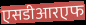
एसडीआरएफ